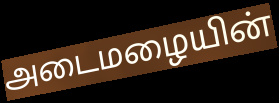
அடைமழையின்